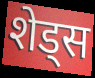
शेड्स